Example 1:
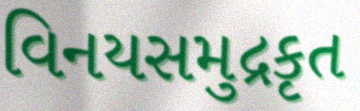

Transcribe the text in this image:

વિનયસમુદ્રકૃત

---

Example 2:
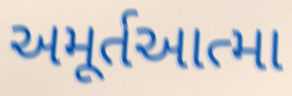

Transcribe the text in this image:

અમૂર્તઆત્મા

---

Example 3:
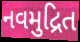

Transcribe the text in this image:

નવમુદ્રિત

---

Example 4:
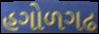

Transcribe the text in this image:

હગોળગઢ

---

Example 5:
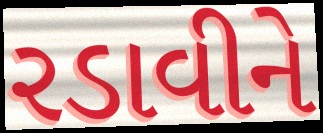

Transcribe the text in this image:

રડાવીને